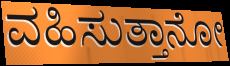
ವಹಿಸುತ್ತಾನೋ